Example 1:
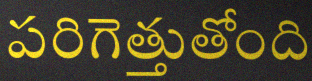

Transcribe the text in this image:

పరిగెత్తుతోంది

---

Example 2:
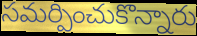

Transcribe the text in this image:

సమర్పించుకొన్నారు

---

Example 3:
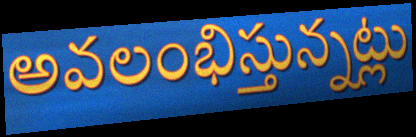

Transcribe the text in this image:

అవలంభిస్తున్నట్లు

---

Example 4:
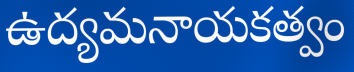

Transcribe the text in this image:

ఉద్యమనాయకత్వం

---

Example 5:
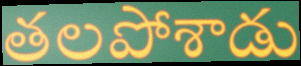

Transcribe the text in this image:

తలపోశాడు